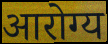
आरोग्य